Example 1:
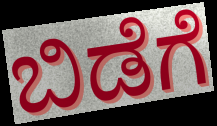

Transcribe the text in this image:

ಬಿಡೆಗೆ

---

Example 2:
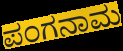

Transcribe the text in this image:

ಪಂಗನಾಮ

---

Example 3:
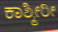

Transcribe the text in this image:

ಕಾಶ್ಮೀರೀ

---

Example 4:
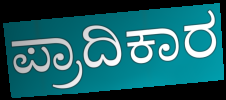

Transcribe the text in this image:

ಪ್ರಾದಿಕಾರ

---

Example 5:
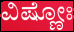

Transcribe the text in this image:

ವಿಷ್ಣೋಃ